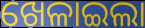
ଖେଳାଇଲା